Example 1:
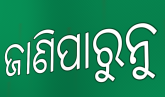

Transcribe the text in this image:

ଜାଣିପାରୁନୁ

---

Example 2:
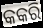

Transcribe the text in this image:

କକରି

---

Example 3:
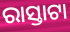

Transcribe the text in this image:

ରାସ୍ତାଟା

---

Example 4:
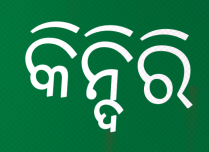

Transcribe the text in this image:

କିନ୍ଦିରି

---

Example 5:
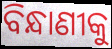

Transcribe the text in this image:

ବିନ୍ଧାଣୀକୁ